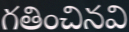
గతించినవి